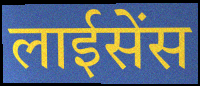
लाईसेंस